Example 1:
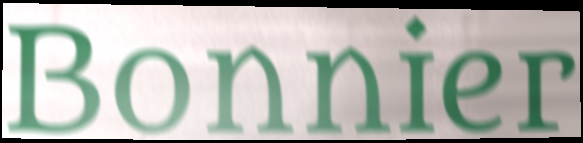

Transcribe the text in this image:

Bonnier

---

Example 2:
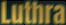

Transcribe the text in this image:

Luthra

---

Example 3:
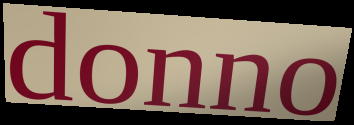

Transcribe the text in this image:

donno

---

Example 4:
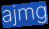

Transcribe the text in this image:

ajmg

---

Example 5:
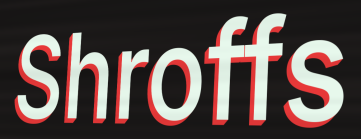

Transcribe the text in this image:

Shroffs